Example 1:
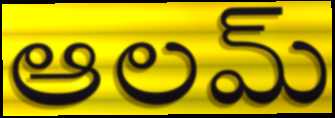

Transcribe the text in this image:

ఆలమ్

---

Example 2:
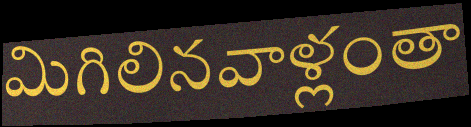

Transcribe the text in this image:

మిగిలినవాళ్లంతా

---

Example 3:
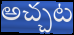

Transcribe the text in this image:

అచ్చట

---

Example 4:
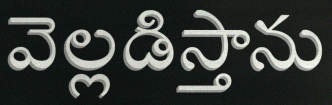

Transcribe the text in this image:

వెల్లడిస్తాను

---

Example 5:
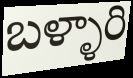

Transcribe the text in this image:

బళ్ళారి